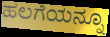
ಹಲಗೆಯನ್ನೂ